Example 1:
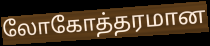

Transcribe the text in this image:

லோகோத்தரமான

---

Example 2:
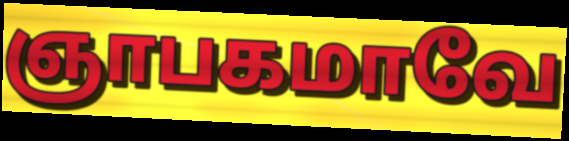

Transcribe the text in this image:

ஞாபகமாவே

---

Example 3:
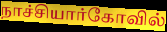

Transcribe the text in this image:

நாச்சியார்கோவில்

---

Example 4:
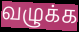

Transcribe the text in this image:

வழுக்க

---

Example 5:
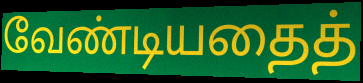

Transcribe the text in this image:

வேண்டியதைத்